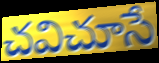
చవిచూసే